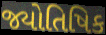
જ્યોતિષિક